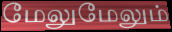
மேலுமேலும்